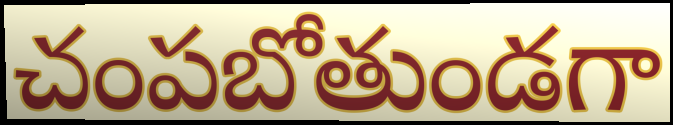
చంపబోతుండగా